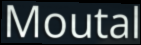
Moutal